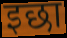
इछा